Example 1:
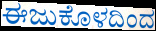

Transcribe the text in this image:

ಈಜುಕೊಳದಿಂದ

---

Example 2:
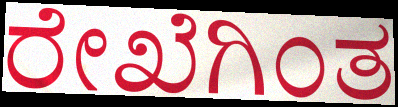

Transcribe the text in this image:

ರೇಖೆಗಿಂತ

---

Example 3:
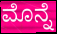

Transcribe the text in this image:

ಮೊನ್ನೆ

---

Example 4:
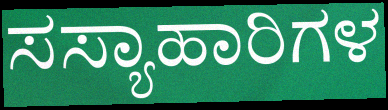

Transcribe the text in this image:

ಸಸ್ಯಾಹಾರಿಗಳ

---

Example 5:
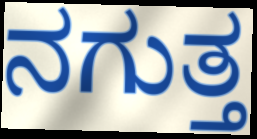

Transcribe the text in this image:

ನಗುತ್ತ